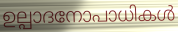
ഉല്പാദനോപാധികൾ